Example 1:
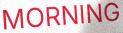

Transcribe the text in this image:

MORNING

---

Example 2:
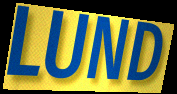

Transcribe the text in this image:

LUND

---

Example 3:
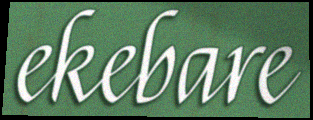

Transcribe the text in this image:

ekebare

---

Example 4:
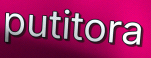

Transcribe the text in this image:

putitora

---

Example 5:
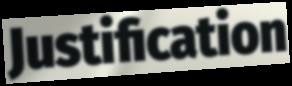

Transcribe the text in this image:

Justification